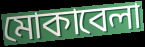
মোকাবেলা